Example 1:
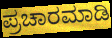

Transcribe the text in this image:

ಪ್ರಚಾರಮಾಡಿ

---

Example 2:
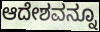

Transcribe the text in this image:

ಆದೇಶವನ್ನೂ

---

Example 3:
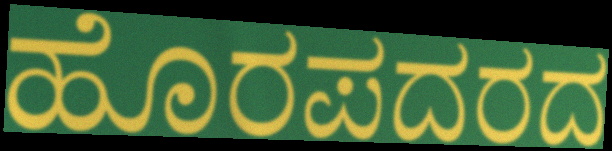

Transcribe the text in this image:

ಹೊರಪದರದ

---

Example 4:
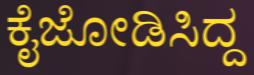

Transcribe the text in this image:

ಕೈಜೋಡಿಸಿದ್ದ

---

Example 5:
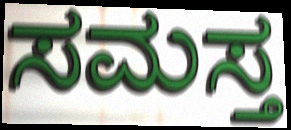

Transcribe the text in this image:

ಸಮಸ್ತ